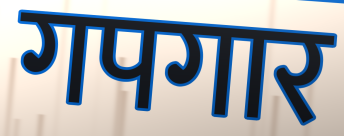
गपगार